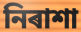
নিৰাশা